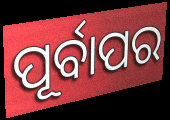
ପୂର୍ବାପର